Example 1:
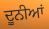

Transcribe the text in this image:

ਦੂਨੀਆਂ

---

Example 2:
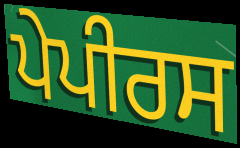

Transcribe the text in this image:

ਪੇਪੀਰਸ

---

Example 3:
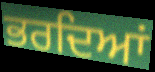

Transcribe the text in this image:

ਭਰਦਿਆਂ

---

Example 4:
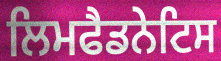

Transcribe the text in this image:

ਲਿਮਫੈਡਨੇਟਿਸ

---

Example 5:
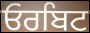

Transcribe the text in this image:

ਓਰਬਿਟ